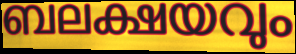
ബലക്ഷയവും